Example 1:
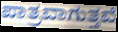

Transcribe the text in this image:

ಪಾತ್ರವಾಗುತ್ತವೆ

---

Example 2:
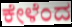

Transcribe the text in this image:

ಕೇಳೆಂದ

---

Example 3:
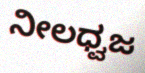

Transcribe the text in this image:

ನೀಲಧ್ವಜ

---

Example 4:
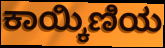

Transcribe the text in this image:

ಕಾಯ್ಕಿಣಿಯ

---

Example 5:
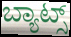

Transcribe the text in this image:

ಬ್ಯಾಟ್ಸ್